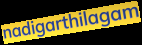
nadigarthilagam